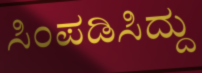
ಸಿಂಪಡಿಸಿದ್ದು